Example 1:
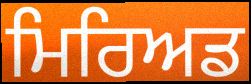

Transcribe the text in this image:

ਮਿਰਿਅਡ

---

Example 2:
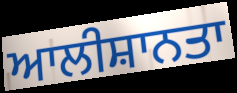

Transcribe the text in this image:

ਆਲੀਸ਼ਾਨਤਾ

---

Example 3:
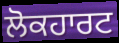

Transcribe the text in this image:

ਲੋਕਹਾਰਟ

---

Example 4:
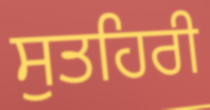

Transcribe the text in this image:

ਸੁਤਹਿਰੀ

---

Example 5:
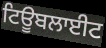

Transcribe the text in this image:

ਟਿਊਬਲਾਈਟ